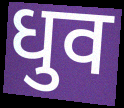
धुव